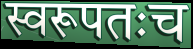
स्वरूपतःच